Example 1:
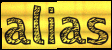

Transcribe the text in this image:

alias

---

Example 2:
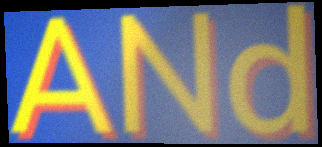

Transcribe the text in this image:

ANd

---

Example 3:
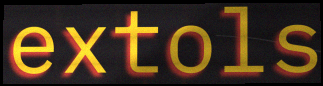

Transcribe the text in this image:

extols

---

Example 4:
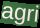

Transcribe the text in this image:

agri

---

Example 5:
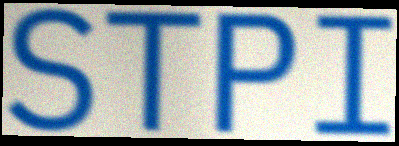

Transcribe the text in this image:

STPI